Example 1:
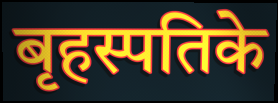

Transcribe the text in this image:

बृहस्पतिके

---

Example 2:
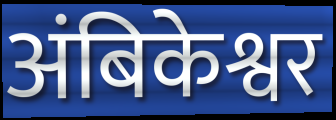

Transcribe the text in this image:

अंबिकेश्वर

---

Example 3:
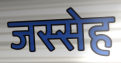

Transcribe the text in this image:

जस्सेह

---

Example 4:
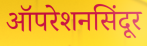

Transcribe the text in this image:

ऑपरेशनसिंदूर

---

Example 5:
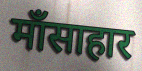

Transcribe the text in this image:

माँसाहार